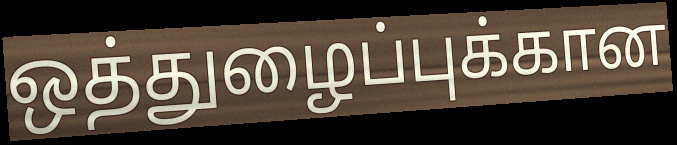
ஒத்துழைப்புக்கான